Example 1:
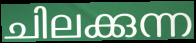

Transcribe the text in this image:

ചിലക്കുന്ന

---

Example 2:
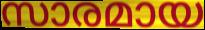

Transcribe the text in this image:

സാരമായ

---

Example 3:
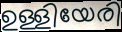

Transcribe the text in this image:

ഉള്ളിയേരി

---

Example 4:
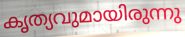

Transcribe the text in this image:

കൃത്യവുമായിരുന്നു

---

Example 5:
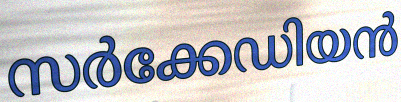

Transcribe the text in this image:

സർക്കേഡിയൻ